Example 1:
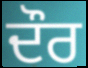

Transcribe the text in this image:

ਦੌਰ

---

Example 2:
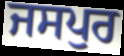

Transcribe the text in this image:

ਜਸਪੁਰ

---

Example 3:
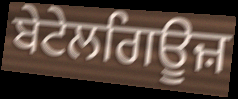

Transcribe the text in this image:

ਬੇਟੇਲਗਿਊਜ਼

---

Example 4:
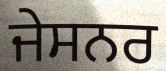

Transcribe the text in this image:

ਜੇਸਨਰ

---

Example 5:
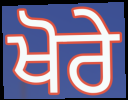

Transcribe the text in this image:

ਖੋਰੇ